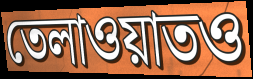
তেলাওয়াতও